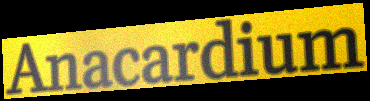
Anacardium